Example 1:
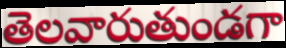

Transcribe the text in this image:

తెలవారుతుండగా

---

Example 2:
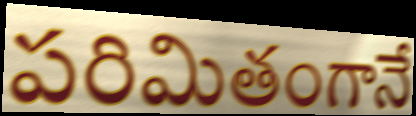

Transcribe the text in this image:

పరిమితంగానే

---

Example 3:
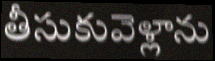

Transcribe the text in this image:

తీసుకువెళ్లాను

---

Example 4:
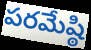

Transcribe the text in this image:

పరమేష్ఠి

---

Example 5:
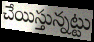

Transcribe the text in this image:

చేయిస్తున్నట్టు